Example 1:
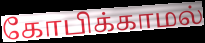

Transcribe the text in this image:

கோபிக்காமல்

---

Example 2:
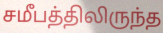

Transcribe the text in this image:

சமீபத்திலிருந்த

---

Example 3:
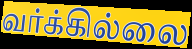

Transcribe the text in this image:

வர்க்கில்லை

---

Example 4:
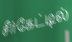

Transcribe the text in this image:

சீர்கேட்டில்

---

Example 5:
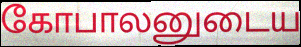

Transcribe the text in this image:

கோபாலனுடைய